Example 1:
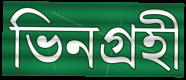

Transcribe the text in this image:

ভিনগ্রহী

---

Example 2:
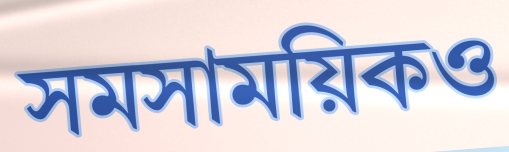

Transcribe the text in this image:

সমসাময়িকও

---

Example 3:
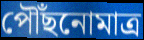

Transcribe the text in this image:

পৌঁছনোমাত্র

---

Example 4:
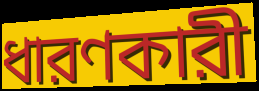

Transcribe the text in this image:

ধারণকারী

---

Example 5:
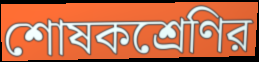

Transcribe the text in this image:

শোষকশ্রেণির